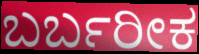
ಬರ್ಬರೀಕ